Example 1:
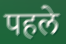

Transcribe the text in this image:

पहले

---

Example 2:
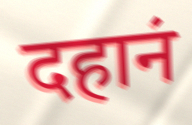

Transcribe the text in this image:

दहानं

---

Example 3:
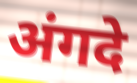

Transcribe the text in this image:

अंगदे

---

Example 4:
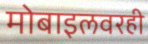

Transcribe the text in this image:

मोबाइलवरही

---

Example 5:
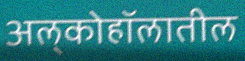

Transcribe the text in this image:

अल्कोहॉलातील